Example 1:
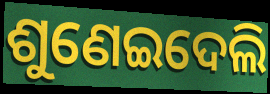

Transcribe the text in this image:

ଶୁଣେଇଦେଲି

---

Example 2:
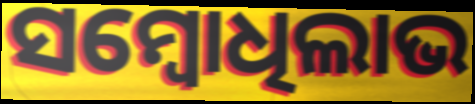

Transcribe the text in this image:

ସମ୍ବୋଧିଲାଭ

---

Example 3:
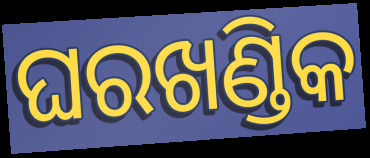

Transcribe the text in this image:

ଘରଖଣ୍ଡିକ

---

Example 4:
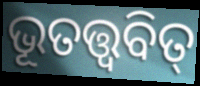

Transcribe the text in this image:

ଭୂତତ୍ତ୍ୱବିତ୍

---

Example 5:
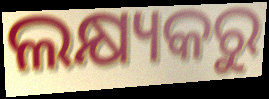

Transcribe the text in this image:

ଲକ୍ଷ୍ୟକରୁ